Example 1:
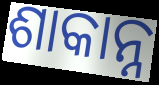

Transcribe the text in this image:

ଶାକାନ୍ନ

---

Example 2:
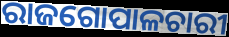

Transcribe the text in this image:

ରାଜଗୋପାଳଚାରୀ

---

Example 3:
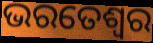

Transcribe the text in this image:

ଭରତେଶ୍ଵର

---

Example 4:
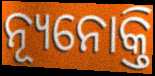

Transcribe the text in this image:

ନ୍ୟୂନୋକ୍ତି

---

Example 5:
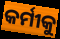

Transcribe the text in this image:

କର୍ମୀକୁ